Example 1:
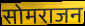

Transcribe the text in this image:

सोमराजन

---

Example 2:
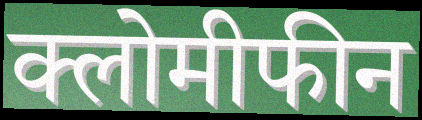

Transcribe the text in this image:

क्लोमीफीन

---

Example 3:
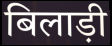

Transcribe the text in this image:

बिलाड़ी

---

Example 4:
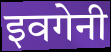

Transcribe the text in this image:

इवगेनी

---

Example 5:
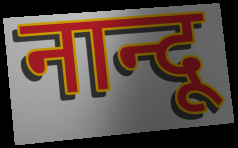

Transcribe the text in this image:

नान्दू